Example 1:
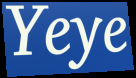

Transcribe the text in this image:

Yeye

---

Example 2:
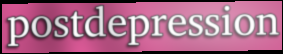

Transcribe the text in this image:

postdepression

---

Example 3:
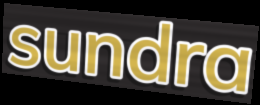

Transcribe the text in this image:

sundra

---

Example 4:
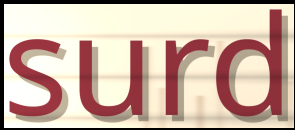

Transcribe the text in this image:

surd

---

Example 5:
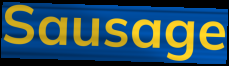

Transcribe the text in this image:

Sausage